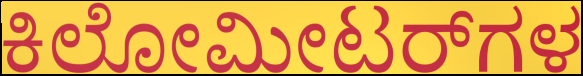
ಕಿಲೋಮೀಟರ್‌ಗಳ